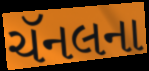
ચૅનલના